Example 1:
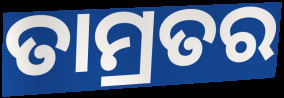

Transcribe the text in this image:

ତାମ୍ରତର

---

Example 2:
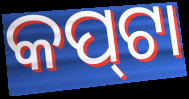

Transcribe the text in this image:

କପ୍‍ଟା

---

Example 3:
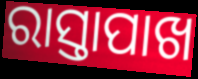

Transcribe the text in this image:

ରାସ୍ତାପାଖ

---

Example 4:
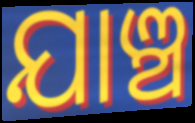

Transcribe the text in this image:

ଯାଞ୍ଚ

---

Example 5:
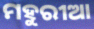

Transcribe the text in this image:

ମହୁରୀଆ